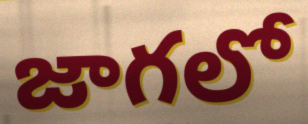
జాగలో